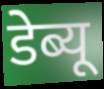
डेब्यू